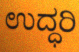
ಉದ್ಧರಿ